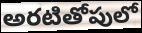
అరటితోపులో